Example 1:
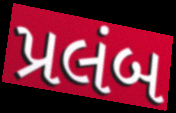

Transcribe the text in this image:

પ્રલંબ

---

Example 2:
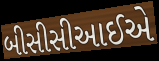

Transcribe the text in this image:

બીસીસીઆઈએ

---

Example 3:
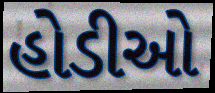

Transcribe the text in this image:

હોડીઓ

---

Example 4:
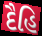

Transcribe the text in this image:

દૈહિ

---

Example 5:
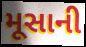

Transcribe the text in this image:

મૂસાની